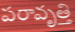
పరావృత్తి